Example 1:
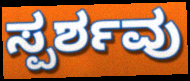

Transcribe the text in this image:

ಸ್ಪರ್ಶವು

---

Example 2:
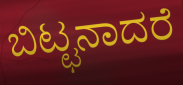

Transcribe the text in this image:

ಬಿಟ್ಟನಾದರೆ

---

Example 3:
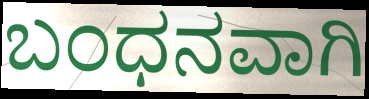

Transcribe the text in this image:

ಬಂಧನವಾಗಿ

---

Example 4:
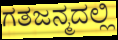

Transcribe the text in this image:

ಗತಜನ್ಮದಲ್ಲಿ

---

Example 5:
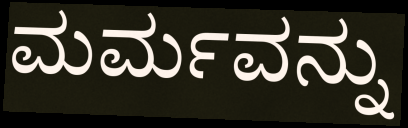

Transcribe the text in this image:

ಮರ್ಮವನ್ನು